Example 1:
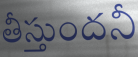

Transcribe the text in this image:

తీస్తుందనీ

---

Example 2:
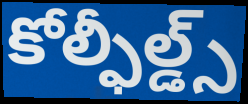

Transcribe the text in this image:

కోల్ఫీల్డ్స్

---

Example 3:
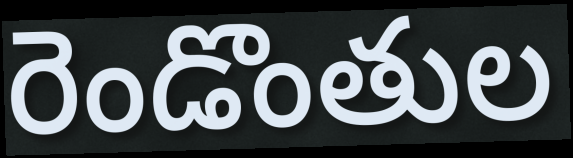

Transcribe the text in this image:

రెండొంతుల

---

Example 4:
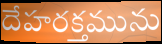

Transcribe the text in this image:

దేహరక్తమును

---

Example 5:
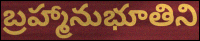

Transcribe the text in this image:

బ్రహ్మానుభూతిని